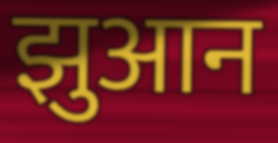
झुआन